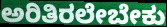
ಅರಿತಿರಲೇಬೇಕು